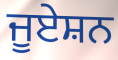
ਜੂਏਸ਼ਨ